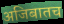
अजिबातच